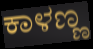
ಕಾಳಣ್ಣ